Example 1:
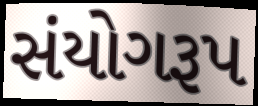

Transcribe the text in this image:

સંયોગરૂપ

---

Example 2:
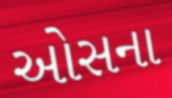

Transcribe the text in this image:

ઓસના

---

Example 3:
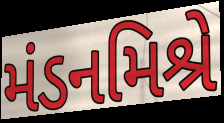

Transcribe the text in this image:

મંડનમિશ્રે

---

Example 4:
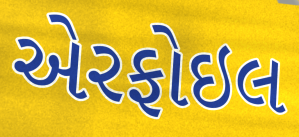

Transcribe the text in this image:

એરફોઇલ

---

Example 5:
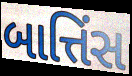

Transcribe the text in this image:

બાત્તિંસ